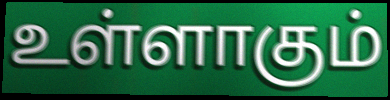
உள்ளாகும்